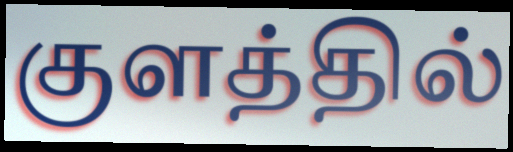
குளத்தில்